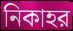
নিকাহর